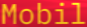
Mobil